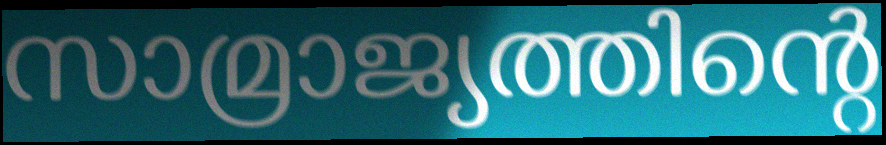
സാമ്രാജ്യത്തിന്റെ